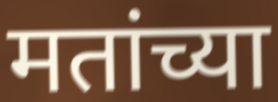
मतांच्या